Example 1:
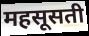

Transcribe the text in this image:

महसूसती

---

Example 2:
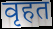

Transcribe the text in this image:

वृहत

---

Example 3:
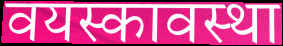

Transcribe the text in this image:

वयस्कावस्था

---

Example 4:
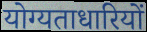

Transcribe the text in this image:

योग्यताधारियों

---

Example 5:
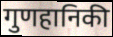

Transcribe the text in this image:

गुणहानिकी